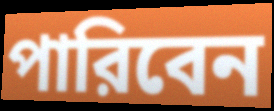
পারিবেন